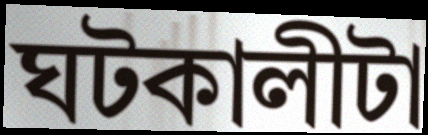
ঘটকালীটা